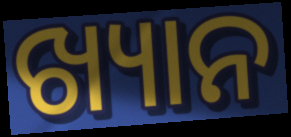
ଖ୍ୟାନ